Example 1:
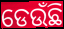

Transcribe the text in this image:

ଡେଉଁଛି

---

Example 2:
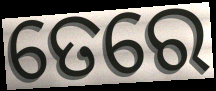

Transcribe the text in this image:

ତେରେ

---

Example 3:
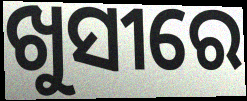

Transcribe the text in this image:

ଖୁସୀରେ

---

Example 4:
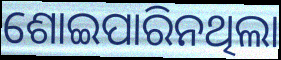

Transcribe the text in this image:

ଶୋଇପାରିନଥିଲା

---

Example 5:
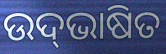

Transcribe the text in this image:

ଉଦ୍‍ଭାଷିତ